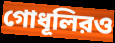
গোধূলিরও